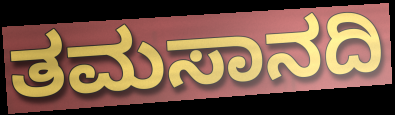
ತಮಸಾನದಿ